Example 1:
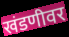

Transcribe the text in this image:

खंडणीवर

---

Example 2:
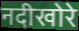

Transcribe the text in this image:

नदीखोरे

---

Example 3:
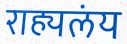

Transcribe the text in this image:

राह्यलंय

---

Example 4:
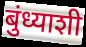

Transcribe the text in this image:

बुंध्याशी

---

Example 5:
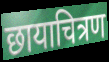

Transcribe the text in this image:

छायाचित्रण